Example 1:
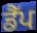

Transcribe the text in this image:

ਡੈੱਪ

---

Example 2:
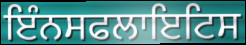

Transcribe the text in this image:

ਇੰਨਸਫਲਾਇਟਿਸ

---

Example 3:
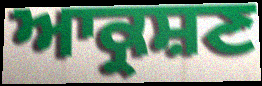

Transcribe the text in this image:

ਆਕ੍ਰਸ਼ਣ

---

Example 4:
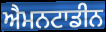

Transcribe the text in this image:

ਐਮਨਟਾਡੀਨ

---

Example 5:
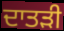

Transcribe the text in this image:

ਦਾਤੜੀ